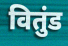
वितुंड